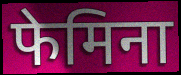
फेमिना